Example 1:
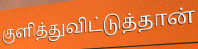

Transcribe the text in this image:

குளித்துவிட்டுத்தான்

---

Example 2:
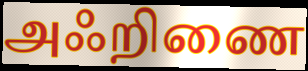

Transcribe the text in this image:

அஃறிணை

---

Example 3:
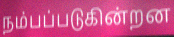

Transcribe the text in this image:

நம்பப்படுகின்றன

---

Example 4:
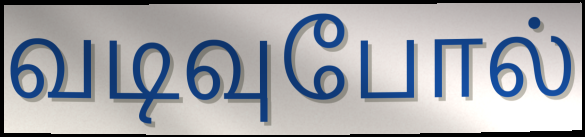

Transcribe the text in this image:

வடிவுபோல்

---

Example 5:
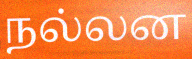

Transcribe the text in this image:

நல்லன